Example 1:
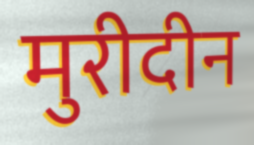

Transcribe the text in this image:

मुरीदीन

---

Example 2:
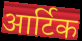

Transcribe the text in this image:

आर्टिक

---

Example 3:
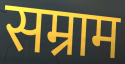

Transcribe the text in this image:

सम्राम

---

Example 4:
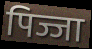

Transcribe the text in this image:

पिज्जा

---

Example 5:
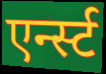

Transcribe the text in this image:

एर्न्स्ट